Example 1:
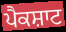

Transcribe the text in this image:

ਪੈਕਸ਼ਾਟ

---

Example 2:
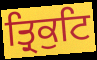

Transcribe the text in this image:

ਤ੍ਰਿਕੁਟਿ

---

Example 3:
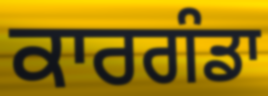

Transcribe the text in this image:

ਕਾਰਗੰਡਾ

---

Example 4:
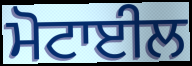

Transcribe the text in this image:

ਮੋਟਾਈਲ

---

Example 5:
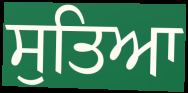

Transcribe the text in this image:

ਸੁਤਿਆ